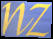
nz